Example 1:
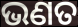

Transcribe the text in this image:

ଭଣତ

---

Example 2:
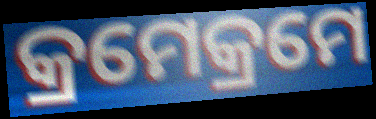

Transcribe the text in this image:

କ୍ରମେକ୍ରମେ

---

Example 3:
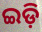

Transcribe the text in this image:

ଇଡ଼ି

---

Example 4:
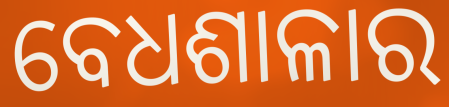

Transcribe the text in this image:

ବେଧଶାଳାର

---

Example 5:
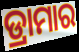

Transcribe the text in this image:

ଡ୍ରାମାର